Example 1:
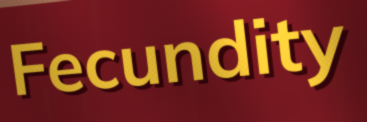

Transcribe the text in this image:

Fecundity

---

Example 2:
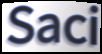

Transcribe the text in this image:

Saci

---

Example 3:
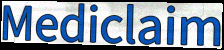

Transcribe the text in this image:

Mediclaim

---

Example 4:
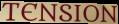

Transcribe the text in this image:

TENSION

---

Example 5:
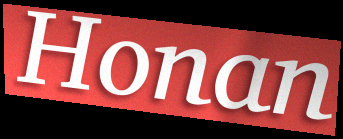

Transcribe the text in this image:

Honan